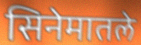
सिनेमातले